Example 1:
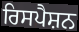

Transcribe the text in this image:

ਰਿਸਪੈਸ਼ਨ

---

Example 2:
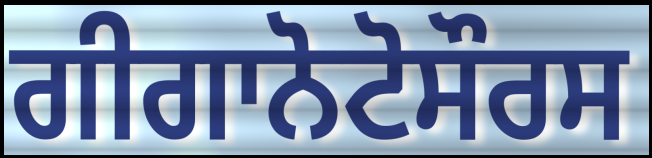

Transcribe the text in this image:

ਗੀਗਾਨੋਟੋਸੌਰਸ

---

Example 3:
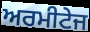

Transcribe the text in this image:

ਅਰਮੀਟੇਜ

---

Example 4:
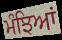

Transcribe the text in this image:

ਮੰਝਿਆਂ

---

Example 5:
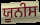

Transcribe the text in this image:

ਯੂਨੀਸ